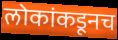
लोकांकडूनच